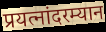
प्रयत्नांदरम्यान